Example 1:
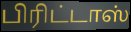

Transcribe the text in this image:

பிரிட்டாஸ்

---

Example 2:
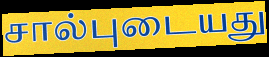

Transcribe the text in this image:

சால்புடையது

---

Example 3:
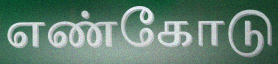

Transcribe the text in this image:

எண்கோடு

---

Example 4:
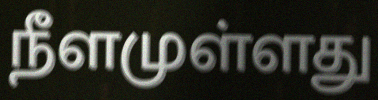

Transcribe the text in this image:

நீளமுள்ளது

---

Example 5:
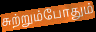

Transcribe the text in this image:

சுற்றும்போதும்